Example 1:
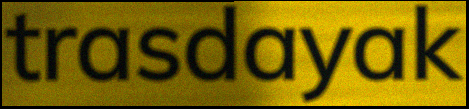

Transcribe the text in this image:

trasdayak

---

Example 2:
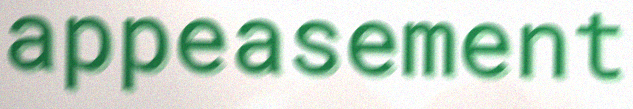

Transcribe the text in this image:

appeasement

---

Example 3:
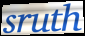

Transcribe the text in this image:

sruth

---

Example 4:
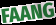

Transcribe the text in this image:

FAANG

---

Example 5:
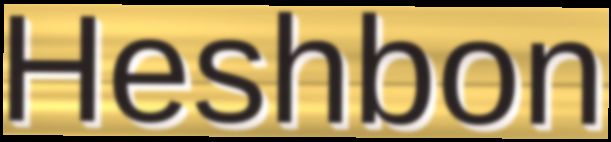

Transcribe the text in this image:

Heshbon